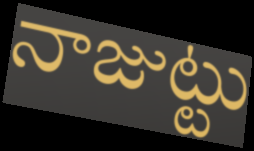
నాజుట్టు